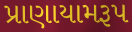
પ્રાણાયામરૂપ